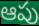
ఆపు